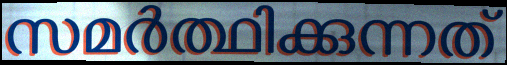
സമർത്ഥിക്കുന്നത്